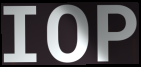
IOP